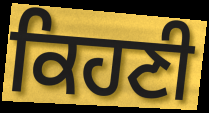
ਕਿਹਣੀ